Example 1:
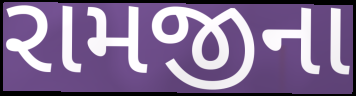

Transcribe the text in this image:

રામજીના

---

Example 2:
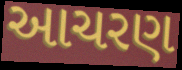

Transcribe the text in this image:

આચરણ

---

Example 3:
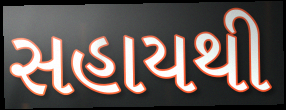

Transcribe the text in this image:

સહાયથી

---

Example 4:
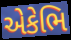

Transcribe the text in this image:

એકેભિ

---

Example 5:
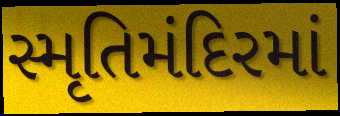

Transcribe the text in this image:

સ્મૃતિમંદિરમાં